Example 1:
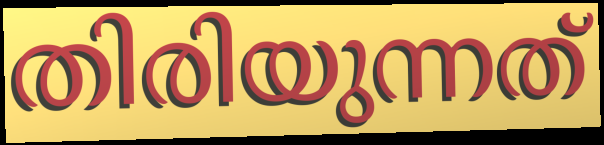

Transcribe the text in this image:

തിരിയുന്നത്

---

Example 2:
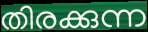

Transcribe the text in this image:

തിരക്കുന്ന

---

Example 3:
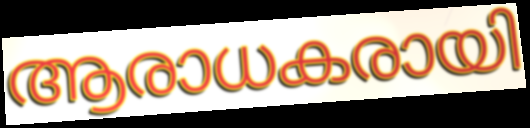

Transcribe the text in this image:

ആരാധകരായി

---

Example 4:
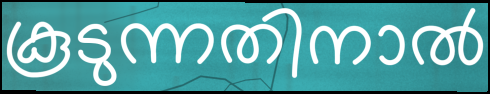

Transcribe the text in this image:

കൂടുന്നതിനാൽ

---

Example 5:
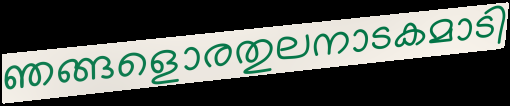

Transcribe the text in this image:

ഞങ്ങളൊരതുലനാടകമാടി